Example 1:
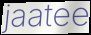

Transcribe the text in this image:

jaatee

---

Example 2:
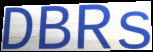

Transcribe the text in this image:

DBRs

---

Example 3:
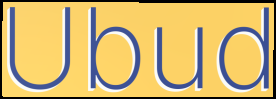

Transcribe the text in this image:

Ubud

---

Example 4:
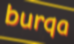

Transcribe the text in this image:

burqa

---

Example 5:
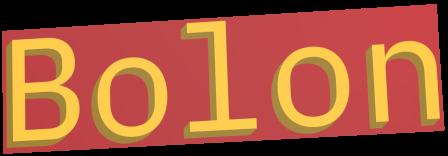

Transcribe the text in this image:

Bolon